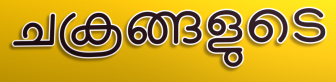
ചക്രങ്ങളുടെ